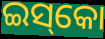
ଇସ୍‌କୋ